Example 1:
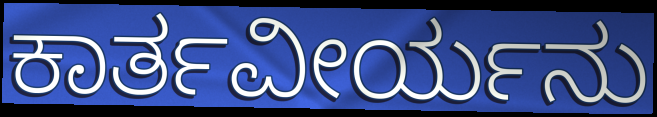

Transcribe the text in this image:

ಕಾರ್ತವೀರ್ಯನು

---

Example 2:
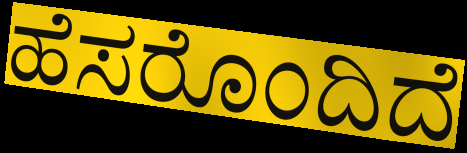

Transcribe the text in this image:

ಹೆಸರೊಂದಿದೆ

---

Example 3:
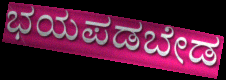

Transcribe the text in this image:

ಭಯಪಡಬೇಡ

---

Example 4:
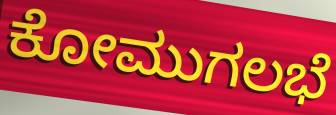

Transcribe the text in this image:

ಕೋಮುಗಲಭೆ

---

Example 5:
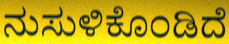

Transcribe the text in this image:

ನುಸುಳಿಕೊಂಡಿದೆ